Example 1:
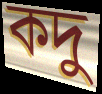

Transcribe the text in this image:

কদু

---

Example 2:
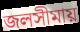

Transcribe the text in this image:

জলসীমায়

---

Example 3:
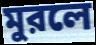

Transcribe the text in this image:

মুরলে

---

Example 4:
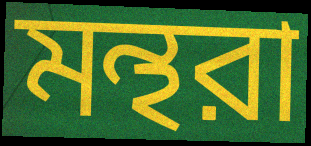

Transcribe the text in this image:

মন্থরা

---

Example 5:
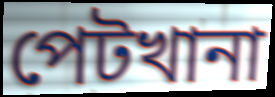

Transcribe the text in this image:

পেটখানা